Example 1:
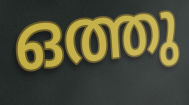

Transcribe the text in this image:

ഒത്തു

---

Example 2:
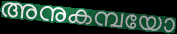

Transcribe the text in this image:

അനുകമ്പയോ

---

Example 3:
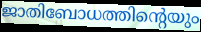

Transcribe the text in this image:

ജാതിബോധത്തിന്റെയും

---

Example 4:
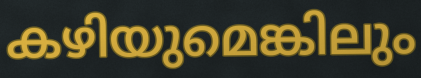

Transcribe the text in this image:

കഴിയുമെങ്കിലും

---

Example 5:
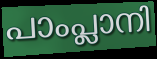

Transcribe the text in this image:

പാംപ്ലാനി